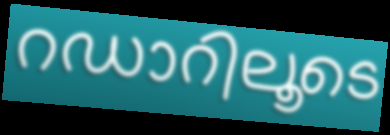
റഡാറിലൂടെ